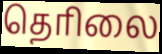
தெரிலை